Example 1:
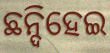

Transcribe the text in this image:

ଛନ୍ଦିହେଇ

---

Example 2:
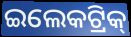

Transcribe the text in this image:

ଇଲେକଟ୍ରିକ୍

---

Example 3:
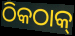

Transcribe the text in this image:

ଠିକଠାକ୍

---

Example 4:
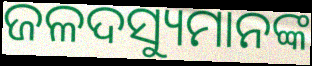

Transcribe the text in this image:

ଜଳଦସ୍ୟୁମାନଙ୍କ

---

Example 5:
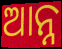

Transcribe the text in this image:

ଆନ୍ନ